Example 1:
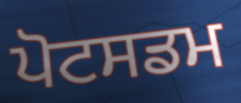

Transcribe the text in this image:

ਪੋਟਸਡਮ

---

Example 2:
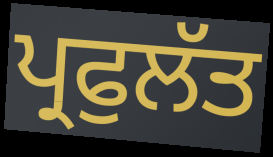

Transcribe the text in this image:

ਪ੍ਰਫੁਲੱਤ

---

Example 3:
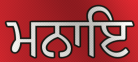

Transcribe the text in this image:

ਮਨਾਇ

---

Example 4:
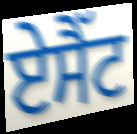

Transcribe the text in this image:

ਏਸੈੱਟ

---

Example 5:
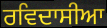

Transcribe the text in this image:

ਰਵਿਦਾਸੀਆ